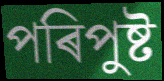
পৰিপুষ্ট